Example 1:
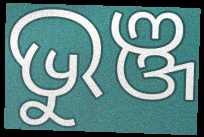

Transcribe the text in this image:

ଭୁଞ୍ଜ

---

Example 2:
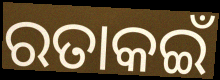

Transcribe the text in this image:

ରତାକଇଁ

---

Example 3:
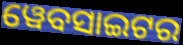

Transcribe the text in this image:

ୱେବସାଇଟର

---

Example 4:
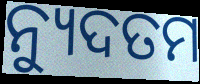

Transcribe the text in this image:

ନ୍ୟୁଦତମ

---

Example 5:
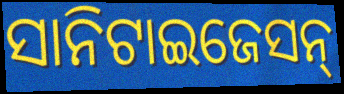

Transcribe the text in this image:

ସାନିଟାଇଜେସନ୍